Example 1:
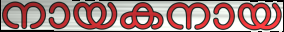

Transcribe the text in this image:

നായകനായ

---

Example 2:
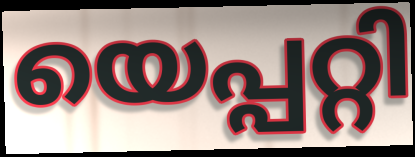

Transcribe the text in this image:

യെപ്പറ്റി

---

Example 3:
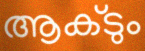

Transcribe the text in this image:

ആക്ടും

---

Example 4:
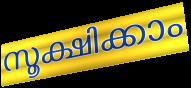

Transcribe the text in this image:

സൂക്ഷിക്കാം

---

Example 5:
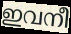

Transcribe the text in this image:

ഇവനീ